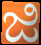
ಜಿ